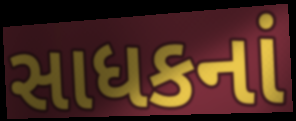
સાધકનાં